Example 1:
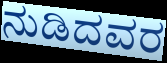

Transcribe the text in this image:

ನುಡಿದವರ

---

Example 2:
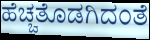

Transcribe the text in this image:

ಹೆಚ್ಚತೊಡಗಿದಂತೆ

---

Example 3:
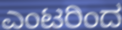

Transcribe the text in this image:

ಎಂಟರಿಂದ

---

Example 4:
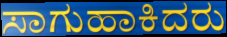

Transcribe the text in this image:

ಸಾಗುಹಾಕಿದರು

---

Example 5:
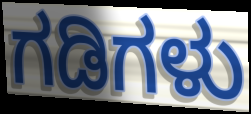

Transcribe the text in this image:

ಗಡಿಗಳು